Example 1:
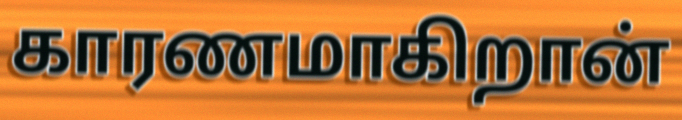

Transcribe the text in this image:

காரணமாகிறான்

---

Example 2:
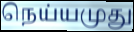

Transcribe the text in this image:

நெய்யமுது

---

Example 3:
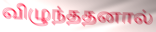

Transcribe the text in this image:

விழுந்ததனால்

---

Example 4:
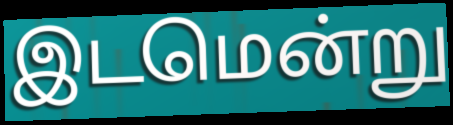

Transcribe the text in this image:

இடமென்று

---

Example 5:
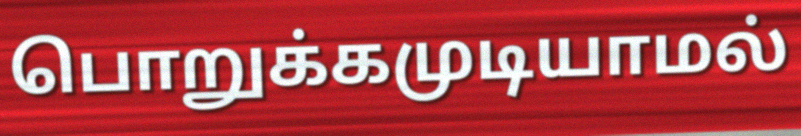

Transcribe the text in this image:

பொறுக்கமுடியாமல்